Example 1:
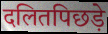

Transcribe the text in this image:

दलितपिछड़े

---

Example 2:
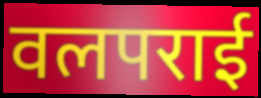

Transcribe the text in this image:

वलपराई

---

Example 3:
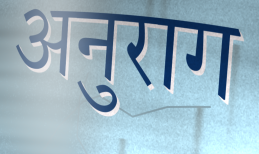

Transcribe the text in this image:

अनुराग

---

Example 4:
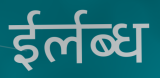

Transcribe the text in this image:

ईर्लब्ध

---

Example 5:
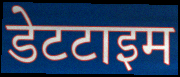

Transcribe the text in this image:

डेटटाइम